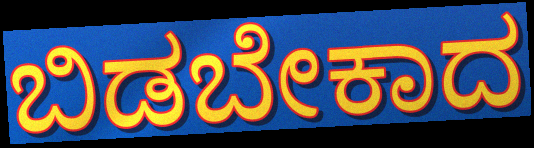
ಬಿಡಬೇಕಾದ